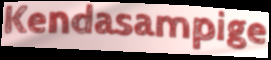
Kendasampige